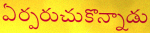
ఏర్పరుచుకొన్నాడు